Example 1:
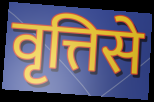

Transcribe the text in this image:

वृत्तिसे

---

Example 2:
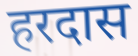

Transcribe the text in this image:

हरदास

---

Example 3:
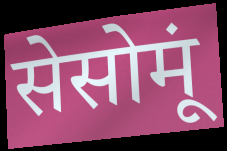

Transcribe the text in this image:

सेसोमूं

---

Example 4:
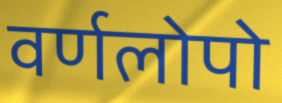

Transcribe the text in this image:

वर्णलोपो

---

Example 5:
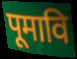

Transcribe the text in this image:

पूमावि